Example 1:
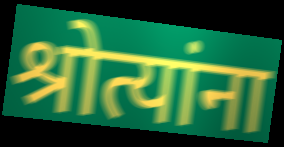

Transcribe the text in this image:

श्रोत्यांना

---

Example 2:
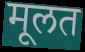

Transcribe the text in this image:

मूलत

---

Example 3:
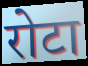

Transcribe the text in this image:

रोटा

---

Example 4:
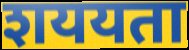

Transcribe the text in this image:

शययता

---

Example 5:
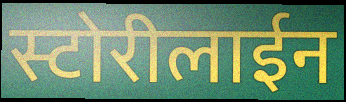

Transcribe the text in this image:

स्टोरीलाईन